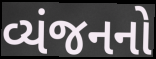
વ્યંજનનો